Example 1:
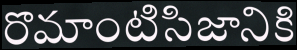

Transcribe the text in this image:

రొమాంటిసిజానికి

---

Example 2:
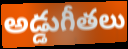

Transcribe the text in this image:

అడ్డుగీతలు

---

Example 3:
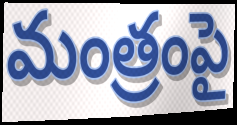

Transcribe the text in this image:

మంత్రంపై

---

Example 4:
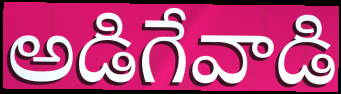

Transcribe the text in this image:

అడిగేవాడి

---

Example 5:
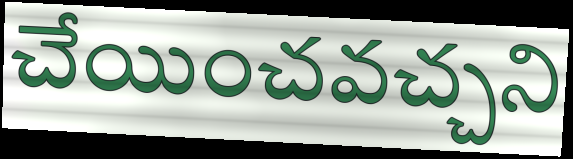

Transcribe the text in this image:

చేయించవచ్చని